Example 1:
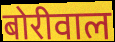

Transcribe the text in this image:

बोरीवाल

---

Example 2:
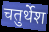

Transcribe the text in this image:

चतुर्थेश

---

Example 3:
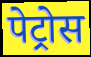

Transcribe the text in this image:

पेट्रोस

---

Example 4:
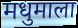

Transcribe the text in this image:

मधुमाला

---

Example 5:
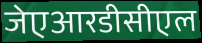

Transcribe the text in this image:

जेएआरडीसीएल